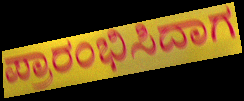
ಪ್ರಾರಂಭಿಸಿದಾಗ